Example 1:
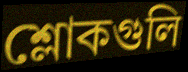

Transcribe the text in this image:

শ্লোকগুলি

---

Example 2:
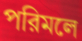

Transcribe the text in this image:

পরিমলে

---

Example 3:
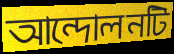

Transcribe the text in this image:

আন্দোলনটি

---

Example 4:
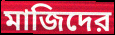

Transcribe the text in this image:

মাজিদের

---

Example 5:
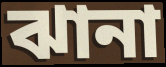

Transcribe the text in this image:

ঝানা